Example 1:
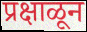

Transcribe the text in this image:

प्रक्षाळून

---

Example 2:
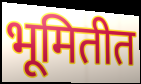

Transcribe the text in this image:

भूमितीत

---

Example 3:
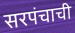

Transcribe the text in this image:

सरपंचाची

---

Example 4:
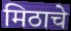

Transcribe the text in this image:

मिठाचे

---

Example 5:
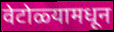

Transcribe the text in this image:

वेटोळ्यामधून